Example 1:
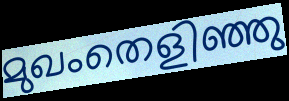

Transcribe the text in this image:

മുഖംതെളിഞ്ഞു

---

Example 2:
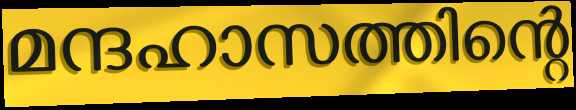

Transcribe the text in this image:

മന്ദഹാസത്തിന്റെ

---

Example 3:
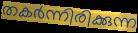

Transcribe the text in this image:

തകർന്നിരിക്കുന്ന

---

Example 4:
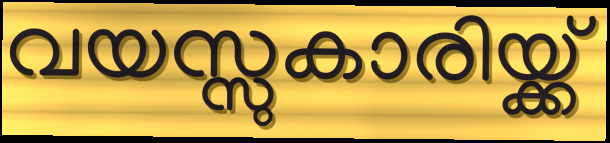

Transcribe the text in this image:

വയസ്സുകാരിയ്ക്ക്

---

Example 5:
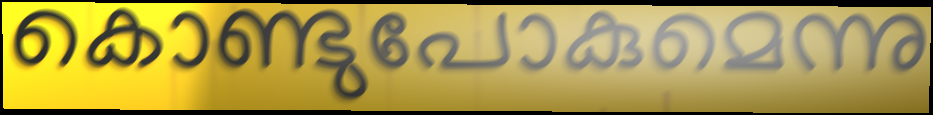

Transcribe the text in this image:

കൊണ്ടുപോകുമെന്നു